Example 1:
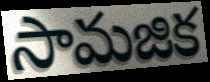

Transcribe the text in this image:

సామజిక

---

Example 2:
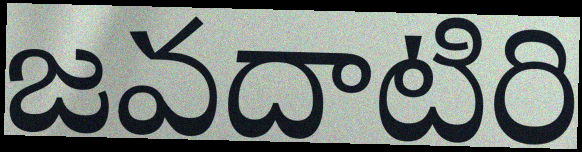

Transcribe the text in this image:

జవదాటిరి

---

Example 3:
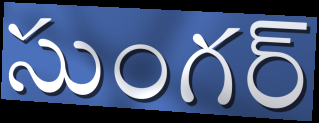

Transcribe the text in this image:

సుంగర్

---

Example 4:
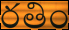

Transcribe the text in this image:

రతిం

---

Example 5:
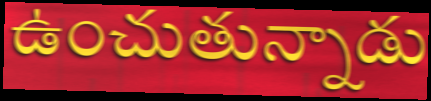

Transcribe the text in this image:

ఉంచుతున్నాడు